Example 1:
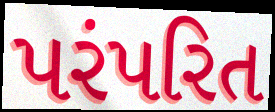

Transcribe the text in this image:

પરંપરિત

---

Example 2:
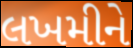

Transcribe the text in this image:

લખમીને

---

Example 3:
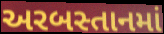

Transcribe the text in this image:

અરબસ્તાનમાં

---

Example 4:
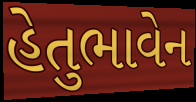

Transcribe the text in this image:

હેતુભાવેન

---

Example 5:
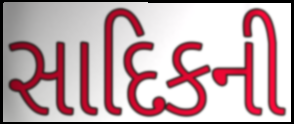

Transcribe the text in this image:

સાદિકની